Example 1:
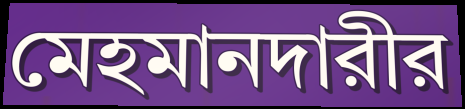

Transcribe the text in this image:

মেহমানদারীর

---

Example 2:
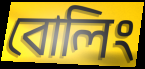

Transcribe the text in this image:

বোলিং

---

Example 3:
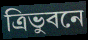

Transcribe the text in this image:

ত্রিভুবনে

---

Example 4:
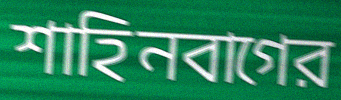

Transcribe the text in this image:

শাহিনবাগের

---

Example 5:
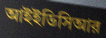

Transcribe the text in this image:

আইইডিসিআর